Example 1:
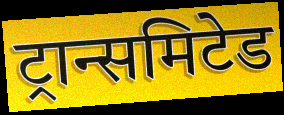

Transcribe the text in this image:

ट्रान्समिटेड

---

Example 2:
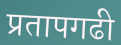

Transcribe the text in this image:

प्रतापगढी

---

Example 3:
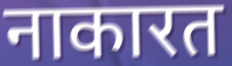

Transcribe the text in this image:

नाकारत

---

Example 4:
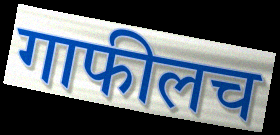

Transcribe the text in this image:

गाफीलच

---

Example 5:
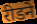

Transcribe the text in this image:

रीडने